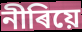
নীৰিয়ে